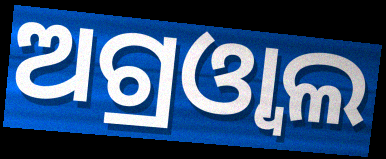
ଅଗ୍ରଓ୍ୱାଲ